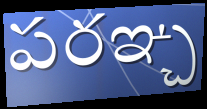
పరఞ్చ